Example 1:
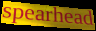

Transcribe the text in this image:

spearhead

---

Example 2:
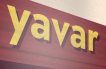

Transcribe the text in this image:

yavar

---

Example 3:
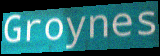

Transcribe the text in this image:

Groynes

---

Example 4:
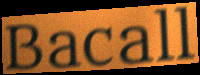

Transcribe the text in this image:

Bacall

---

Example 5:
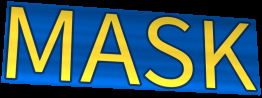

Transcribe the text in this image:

MASK